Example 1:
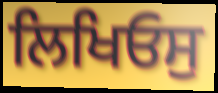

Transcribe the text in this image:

ਲਿਖਿਓਸੁ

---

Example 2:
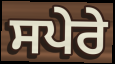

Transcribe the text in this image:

ਸਪੇਰੇ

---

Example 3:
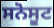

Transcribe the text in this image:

ਸਨੋਸੂਟ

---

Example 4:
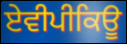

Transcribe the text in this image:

ਏਵੀਪੀਕਿਊ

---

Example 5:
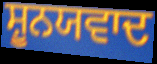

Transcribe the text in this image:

ਸ਼ੂਨਯਵਾਦ